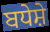
ਬਧੇਸ਼ੇ